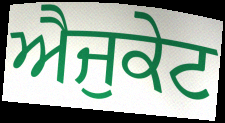
ਐਜੁਕੇਟ